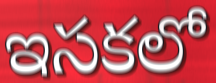
ఇసకలో